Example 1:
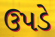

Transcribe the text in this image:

ઉપડે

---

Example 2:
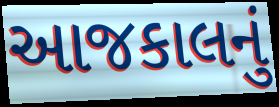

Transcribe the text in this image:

આજકાલનું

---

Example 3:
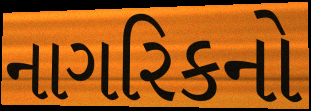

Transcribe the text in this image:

નાગરિકનો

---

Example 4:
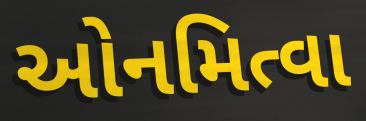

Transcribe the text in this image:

ઓનમિત્વા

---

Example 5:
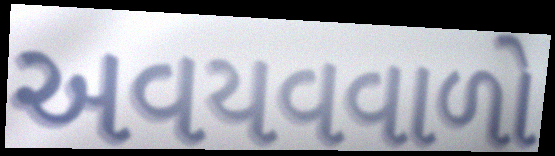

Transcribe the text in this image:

અવયવવાળો